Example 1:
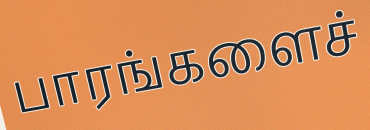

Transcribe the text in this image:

பாரங்களைச்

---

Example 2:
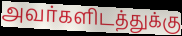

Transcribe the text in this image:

அவர்களிடத்துக்கு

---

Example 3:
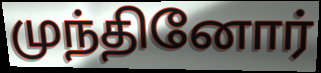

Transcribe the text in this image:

முந்தினோர்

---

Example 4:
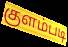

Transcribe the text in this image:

குளம்படி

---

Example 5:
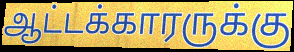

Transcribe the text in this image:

ஆட்டக்காரருக்கு